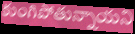
కుంగిపోతున్నాయని